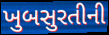
ખુબસુરતીની